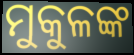
ମୁକୁଳଙ୍କ